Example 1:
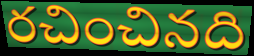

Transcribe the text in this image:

రచించినది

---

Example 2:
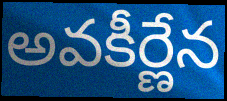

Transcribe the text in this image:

అవకీర్ణేన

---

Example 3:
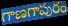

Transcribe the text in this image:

గాణగాపురం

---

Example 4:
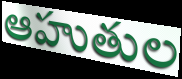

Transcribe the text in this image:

ఆహుతుల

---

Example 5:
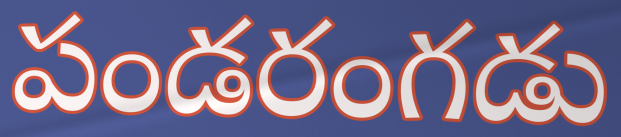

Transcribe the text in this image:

పండరంగడు